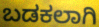
ಬಡಕಲಾಗಿ